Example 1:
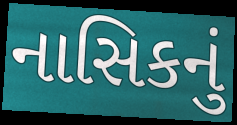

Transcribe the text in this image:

નાસિકનું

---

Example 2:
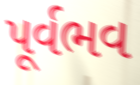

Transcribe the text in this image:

પૂર્વભવ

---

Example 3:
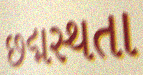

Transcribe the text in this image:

છદ્મસ્થતા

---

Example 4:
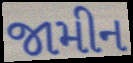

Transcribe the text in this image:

જામીન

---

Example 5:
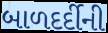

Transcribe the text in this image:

બાળદર્દીની